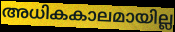
അധികകാലമായില്ല